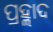
ପ୍ରହ୍ଲାଦ